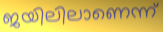
ജയിലിലാണെന്ന്